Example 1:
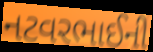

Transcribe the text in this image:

નટવરભાઈની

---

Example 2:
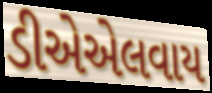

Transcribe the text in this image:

ડીએએલવાય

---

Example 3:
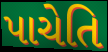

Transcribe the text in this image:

પાચેતિ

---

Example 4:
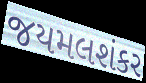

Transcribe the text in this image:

જયમલશંકર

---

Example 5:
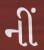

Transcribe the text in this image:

નીં